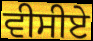
ਵੀਸੀਏ